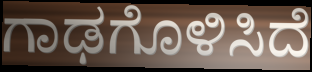
ಗಾಢಗೊಳಿಸಿದೆ